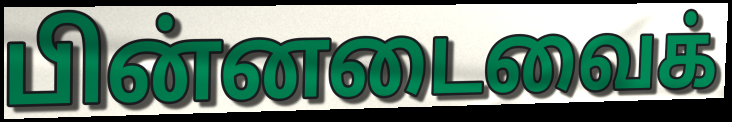
பின்னடைவைக்